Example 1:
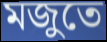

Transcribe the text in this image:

মজুতে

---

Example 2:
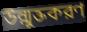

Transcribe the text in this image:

উন্মুক্তকরণ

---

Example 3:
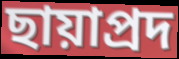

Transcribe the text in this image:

ছায়াপ্রদ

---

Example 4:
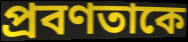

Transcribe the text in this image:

প্রবণতাকে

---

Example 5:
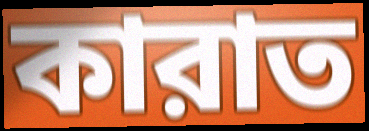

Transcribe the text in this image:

কারাত